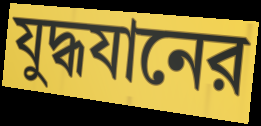
যুদ্ধযানের